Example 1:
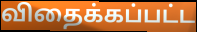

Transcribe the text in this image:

விதைக்கப்பட்ட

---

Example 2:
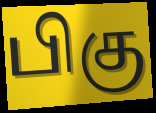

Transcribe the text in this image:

பிகு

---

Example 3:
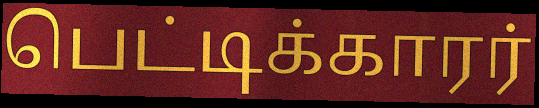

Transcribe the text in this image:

பெட்டிக்காரர்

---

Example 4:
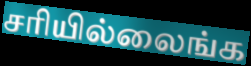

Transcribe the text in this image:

சரியில்லைங்க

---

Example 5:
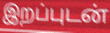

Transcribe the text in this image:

இறப்புடன்